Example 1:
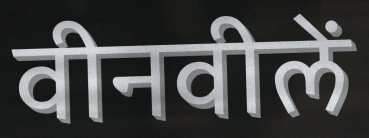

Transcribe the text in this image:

वीनवीलें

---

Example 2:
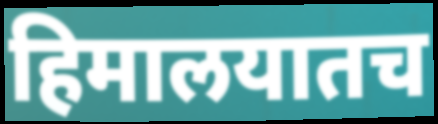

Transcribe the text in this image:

हिमालयातच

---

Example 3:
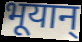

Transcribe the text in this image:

भूयान्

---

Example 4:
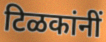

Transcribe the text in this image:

टिळकांनीं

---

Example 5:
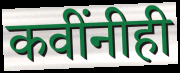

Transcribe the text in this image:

कवींनीही